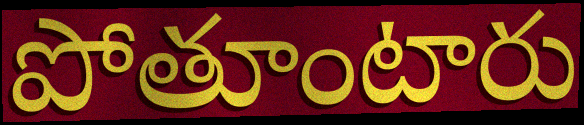
పోతూంటారు